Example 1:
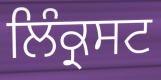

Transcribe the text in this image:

ਲਿੰਕ੍ਰਸਟ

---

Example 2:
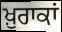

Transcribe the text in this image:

ਖ਼ੁਰਾਕਾਂ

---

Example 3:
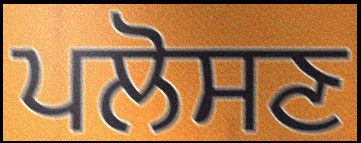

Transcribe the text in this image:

ਪਲੋਸਣ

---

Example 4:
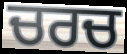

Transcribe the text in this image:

ਚਰਚ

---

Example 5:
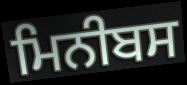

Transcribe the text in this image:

ਮਿਨੀਬਸ